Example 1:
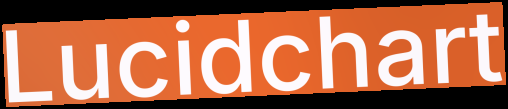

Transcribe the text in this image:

Lucidchart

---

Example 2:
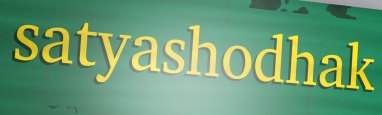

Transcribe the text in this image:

satyashodhak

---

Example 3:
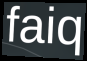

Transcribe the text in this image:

faiq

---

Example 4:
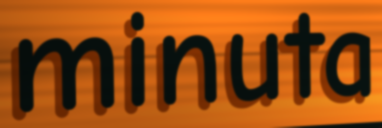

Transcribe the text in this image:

minuta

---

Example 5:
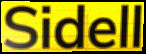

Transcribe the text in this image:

Sidell